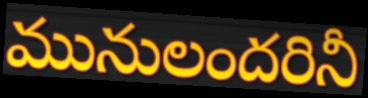
మునులందరినీ